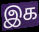
இக